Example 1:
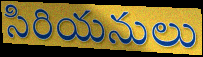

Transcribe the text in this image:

సిరియనులు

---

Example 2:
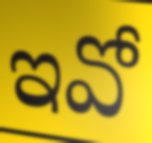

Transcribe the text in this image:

ఇవో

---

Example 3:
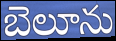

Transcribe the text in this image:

బెలూను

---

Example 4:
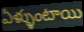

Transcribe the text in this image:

ఏళ్ళుంటాయి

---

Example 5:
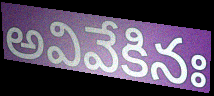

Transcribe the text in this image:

అవివేకినః